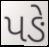
પઙે